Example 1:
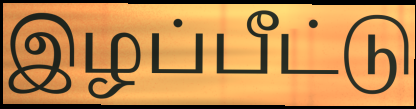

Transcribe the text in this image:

இழப்பீட்டு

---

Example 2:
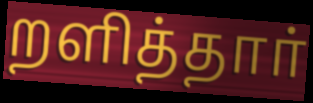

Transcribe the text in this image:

றளித்தார்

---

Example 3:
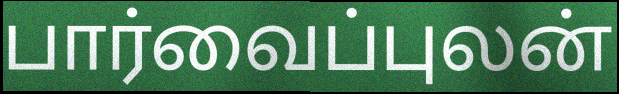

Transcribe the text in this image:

பார்வைப்புலன்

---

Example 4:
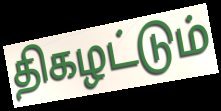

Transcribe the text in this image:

திகழட்டும்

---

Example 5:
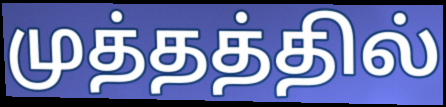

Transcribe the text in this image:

முத்தத்தில்